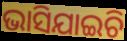
ଭାସିଯାଇଚି